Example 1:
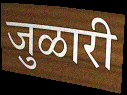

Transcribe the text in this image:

जुळारी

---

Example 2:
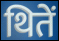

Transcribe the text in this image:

थितें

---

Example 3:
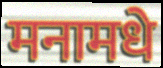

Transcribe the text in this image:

मनामधे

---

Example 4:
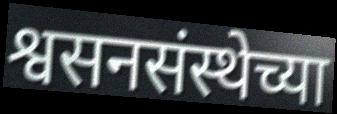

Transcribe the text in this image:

श्वसनसंस्थेच्या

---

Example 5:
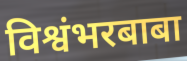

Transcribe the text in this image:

विश्वंभरबाबा